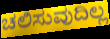
ಚಲಿಸುವುದಿಲ್ಲ